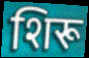
शिरू